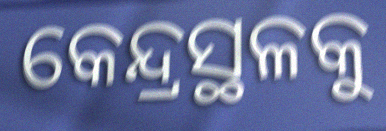
କେନ୍ଦ୍ରସ୍ଥଳକୁ